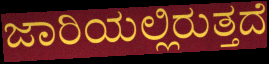
ಜಾರಿಯಲ್ಲಿರುತ್ತದೆ